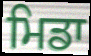
ਮਿਡਾ